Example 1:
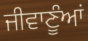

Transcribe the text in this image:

ਜੀਵਾਣੂੰਆਂ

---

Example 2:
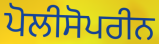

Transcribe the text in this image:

ਪੋਲੀਸੋਪਰੀਨ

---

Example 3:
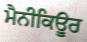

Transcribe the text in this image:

ਮੈਨੀਕਿਊਰ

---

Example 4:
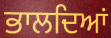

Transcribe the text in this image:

ਭਾਲਦਿਆਂ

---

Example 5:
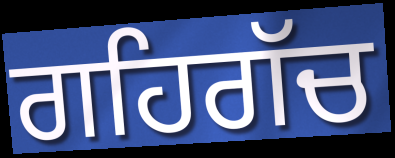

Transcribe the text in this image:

ਗਹਿਗੱਚ